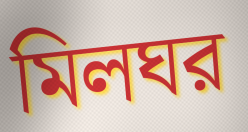
মিলঘর